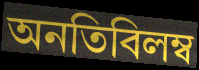
অনতিবিলম্ব